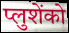
प्लुशेंको